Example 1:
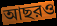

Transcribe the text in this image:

আছরও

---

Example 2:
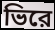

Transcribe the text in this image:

ভিরে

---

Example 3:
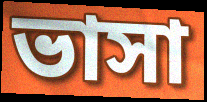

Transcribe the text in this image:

ভাসা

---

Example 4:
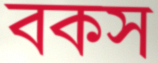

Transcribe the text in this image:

বকস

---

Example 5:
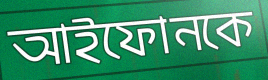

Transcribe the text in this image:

আইফোনকে